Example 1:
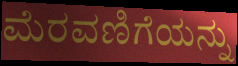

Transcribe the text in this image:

ಮೆರವಣಿಗೆಯನ್ನು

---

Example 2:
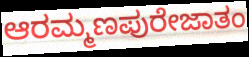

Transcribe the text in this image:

ಆರಮ್ಮಣಪುರೇಜಾತಂ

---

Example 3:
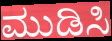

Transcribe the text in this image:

ಮುಡಿಸಿ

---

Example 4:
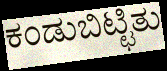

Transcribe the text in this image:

ಕಂಡುಬಿಟ್ಟಿತು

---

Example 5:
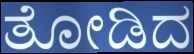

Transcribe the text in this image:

ತೋಡಿದ